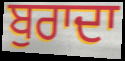
ਬੁਰਾਦਾ